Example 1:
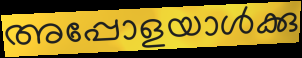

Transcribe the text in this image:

അപ്പോളയാൾക്കു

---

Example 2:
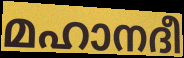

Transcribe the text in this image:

മഹാനദീ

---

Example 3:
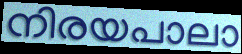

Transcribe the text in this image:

നിരയപാലാ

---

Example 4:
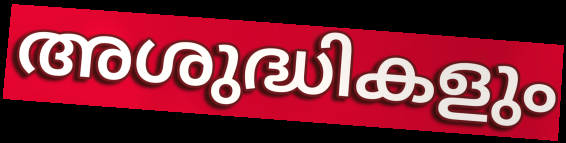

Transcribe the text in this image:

അശുദ്ധികളും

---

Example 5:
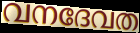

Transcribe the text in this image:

വനദേവത